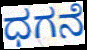
ಧಗನೆ